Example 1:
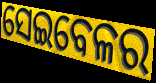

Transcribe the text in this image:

ସେଇବେଳର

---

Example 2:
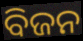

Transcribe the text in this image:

ବିଜନ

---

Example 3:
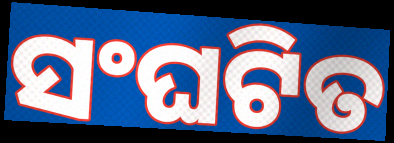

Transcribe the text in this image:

ସଂଘଟିତ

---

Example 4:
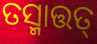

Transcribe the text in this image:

ତସ୍ମାତ୍ତତ୍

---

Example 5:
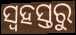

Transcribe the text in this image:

ସ୍ୱହସ୍ତରୁ